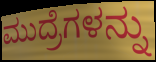
ಮುದ್ರೆಗಳನ್ನು